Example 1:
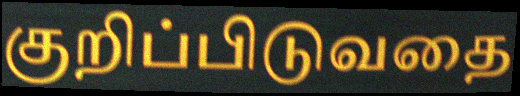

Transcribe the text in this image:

குறிப்பிடுவதை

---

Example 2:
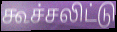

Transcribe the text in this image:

கூச்சலிட்டு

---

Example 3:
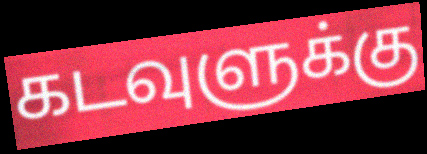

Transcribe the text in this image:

கடவுளுக்கு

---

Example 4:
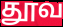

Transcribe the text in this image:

தூவ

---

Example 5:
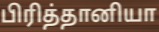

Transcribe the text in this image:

பிரித்தானியா